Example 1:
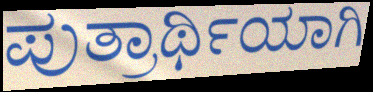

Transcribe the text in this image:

ಪುತ್ರಾರ್ಥಿಯಾಗಿ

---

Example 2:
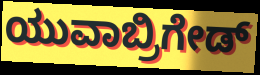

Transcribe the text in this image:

ಯುವಾಬ್ರಿಗೇಡ್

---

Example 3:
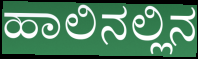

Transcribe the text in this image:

ಹಾಲಿನಲ್ಲಿನ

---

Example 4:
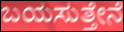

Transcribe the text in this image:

ಬಯಸುತ್ತೇನೆ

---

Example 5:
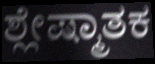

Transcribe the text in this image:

ಶ್ಲೇಷ್ಮಾತಕ